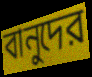
বানুদের